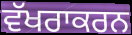
ਵੱਖਰਾਕਰਨ